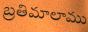
బ్రతిమాలాము